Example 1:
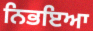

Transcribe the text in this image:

ਨਿਭਇਆ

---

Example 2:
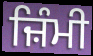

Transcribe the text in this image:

ਜ਼ਿੰਮੀ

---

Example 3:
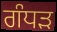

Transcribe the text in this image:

ਗੰਧੜ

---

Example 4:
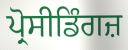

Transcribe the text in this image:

ਪ੍ਰੋਸੀਡਿੰਗਜ਼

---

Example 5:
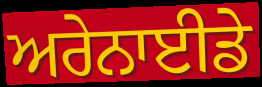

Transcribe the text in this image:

ਅਰੇਨਾਈਡੇ